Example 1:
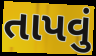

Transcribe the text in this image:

તાપવું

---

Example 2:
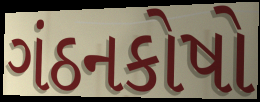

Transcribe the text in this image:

ગંઠનકોષો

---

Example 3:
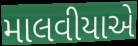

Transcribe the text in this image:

માલવીયાએ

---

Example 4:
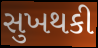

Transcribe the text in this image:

સુખથકી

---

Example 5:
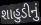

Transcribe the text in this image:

શાહુડીનું